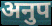
अनुप